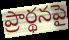
ప్రార్థనపై